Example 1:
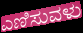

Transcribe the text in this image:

ಎಣಿಸುವಳು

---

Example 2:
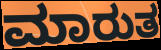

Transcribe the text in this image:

ಮಾರುತ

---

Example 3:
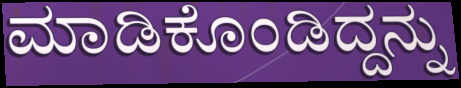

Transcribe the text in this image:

ಮಾಡಿಕೊಂಡಿದ್ದನ್ನು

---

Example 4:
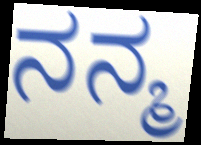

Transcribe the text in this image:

ನನ್ಮ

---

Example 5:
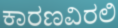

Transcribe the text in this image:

ಕಾರಣವಿರಲಿ